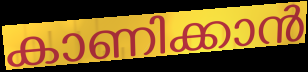
കാണിക്കാൻ